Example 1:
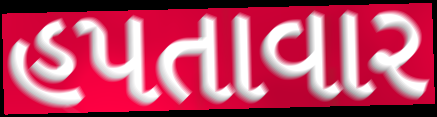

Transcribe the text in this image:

હપતાવાર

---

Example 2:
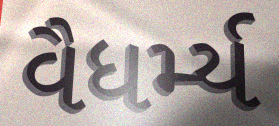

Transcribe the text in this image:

વૈધર્મ્ય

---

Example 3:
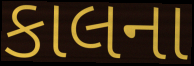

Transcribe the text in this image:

કાલના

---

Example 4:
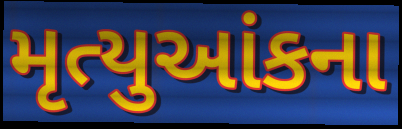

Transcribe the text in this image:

મૃત્યુઆંકના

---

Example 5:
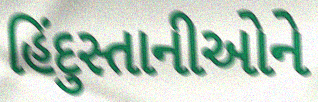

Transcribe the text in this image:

હિંદુસ્તાનીઓને